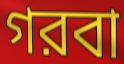
গরবা